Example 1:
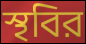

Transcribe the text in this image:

স্থবির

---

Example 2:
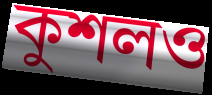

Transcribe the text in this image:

কুশলও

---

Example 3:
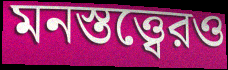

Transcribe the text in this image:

মনস্তত্ত্বেরও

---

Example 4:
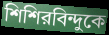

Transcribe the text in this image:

শিশিরবিন্দুকে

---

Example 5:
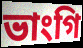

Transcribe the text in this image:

ভাংগি